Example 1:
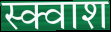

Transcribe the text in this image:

स्क्वाश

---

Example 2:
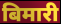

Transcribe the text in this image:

बिमारी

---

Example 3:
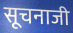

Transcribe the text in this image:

सूचनाजी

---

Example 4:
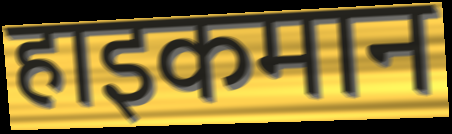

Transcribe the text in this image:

हाइकमान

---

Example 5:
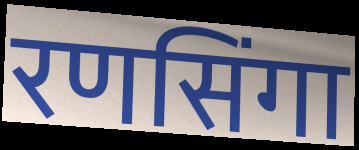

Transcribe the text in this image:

रणसिंगा